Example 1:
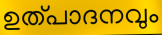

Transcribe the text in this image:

ഉത്പാദനവും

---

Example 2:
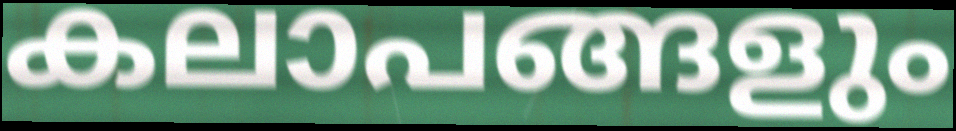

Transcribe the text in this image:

കലാപങ്ങളും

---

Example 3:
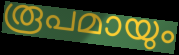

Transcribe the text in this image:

രൂപമായും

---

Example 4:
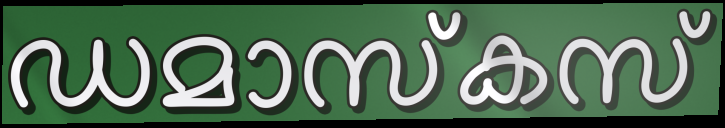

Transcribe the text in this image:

ഡമാസ്കസ്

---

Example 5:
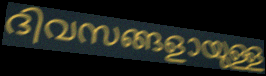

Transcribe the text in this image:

ദിവസങ്ങളായുള്ള